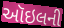
ઑઇલની